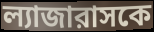
ল্যাজারাসকে